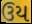
ઉય